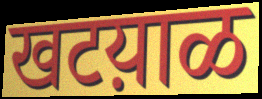
खटय़ाळ